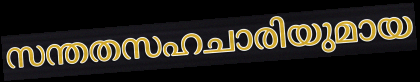
സന്തതസഹചാരിയുമായ